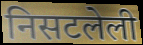
निसटलेली